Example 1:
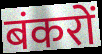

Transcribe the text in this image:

बंकरों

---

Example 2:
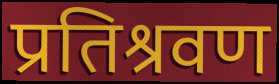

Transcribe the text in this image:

प्रतिश्रवण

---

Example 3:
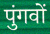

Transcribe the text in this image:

पुंगवों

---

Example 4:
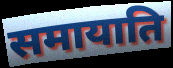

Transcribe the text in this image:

समायाति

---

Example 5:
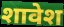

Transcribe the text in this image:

शावेश